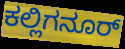
ಕಲ್ಲಿಗನೂರ್